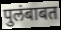
पुलंबाबत